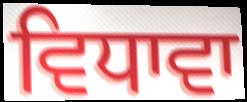
ਵਿਧਾਵਾ